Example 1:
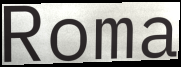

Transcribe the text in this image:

Roma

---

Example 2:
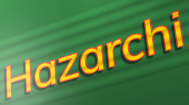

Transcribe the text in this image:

Hazarchi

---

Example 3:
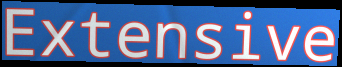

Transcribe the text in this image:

Extensive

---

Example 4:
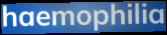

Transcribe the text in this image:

haemophilia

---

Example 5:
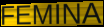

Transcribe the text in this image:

FEMINA